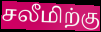
சலீமிற்கு